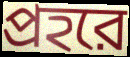
প্রহরে